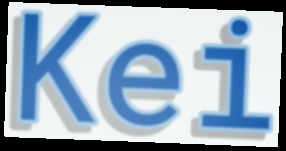
Kei